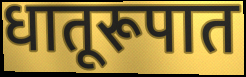
धातूरूपात